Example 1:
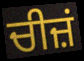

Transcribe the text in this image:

ਚੀਜ਼ਂ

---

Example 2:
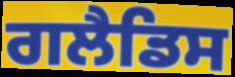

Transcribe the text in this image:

ਗਲੈਡਿਸ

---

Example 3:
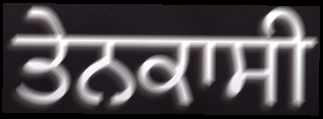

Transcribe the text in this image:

ਤੇਨਕਾਸੀ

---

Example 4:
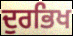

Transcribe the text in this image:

ਦੁਰਭਿਖ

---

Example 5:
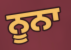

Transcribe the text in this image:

ਨੂਨਾ